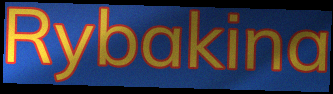
Rybakina